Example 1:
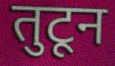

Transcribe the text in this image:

तुटून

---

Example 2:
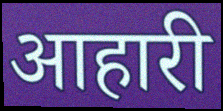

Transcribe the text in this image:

आहारी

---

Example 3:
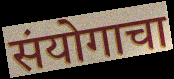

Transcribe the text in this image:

संयोगाचा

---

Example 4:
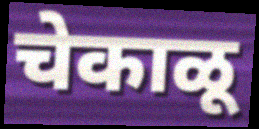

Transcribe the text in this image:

चेकाळू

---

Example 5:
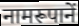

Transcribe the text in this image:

नामरूपानें